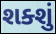
શક્શું